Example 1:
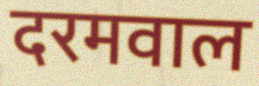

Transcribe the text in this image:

दरमवाल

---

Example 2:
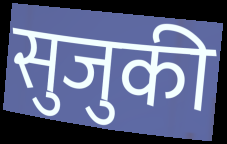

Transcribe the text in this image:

सुजुकी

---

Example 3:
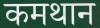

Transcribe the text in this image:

कमथान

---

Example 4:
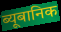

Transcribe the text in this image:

ब्यूबानिक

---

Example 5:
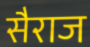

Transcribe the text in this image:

सैराज